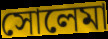
সোলেমা